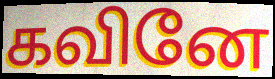
கவினே